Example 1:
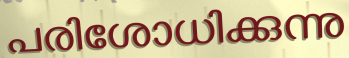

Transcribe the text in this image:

പരിശോധിക്കുന്നു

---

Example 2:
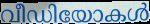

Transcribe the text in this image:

വീഡിയോകൾ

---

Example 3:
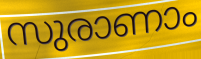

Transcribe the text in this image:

സുരാണാം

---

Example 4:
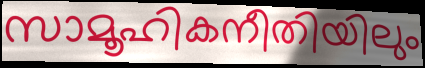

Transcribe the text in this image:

സാമൂഹികനീതിയിലും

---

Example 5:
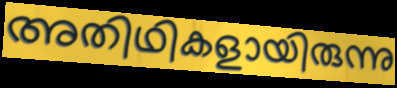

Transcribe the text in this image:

അതിഥികളായിരുന്നു